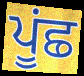
ਪੂਂਛ